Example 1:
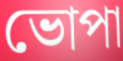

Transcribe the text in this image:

ভোপা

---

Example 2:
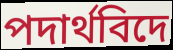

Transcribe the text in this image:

পদাৰ্থবিদে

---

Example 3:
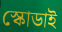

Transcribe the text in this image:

স্কোডাই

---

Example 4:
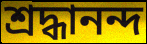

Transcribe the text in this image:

শ্ৰদ্ধানন্দ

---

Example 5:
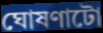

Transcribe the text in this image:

ঘোষণাটো